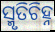
ସ୍ମୃତିଚିହ୍ନ